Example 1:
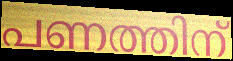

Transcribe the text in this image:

പണത്തിന്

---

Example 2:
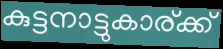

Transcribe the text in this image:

കുട്ടനാട്ടുകാര്ക്ക്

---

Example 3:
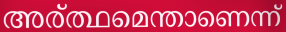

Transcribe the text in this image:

അര്ത്ഥമെന്താണെന്ന്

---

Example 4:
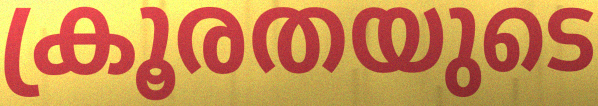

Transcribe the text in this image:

ക്രൂരതയുടെ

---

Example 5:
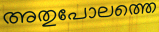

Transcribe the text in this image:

അതുപോലത്തെ